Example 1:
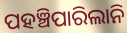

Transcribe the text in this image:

ପହଞ୍ଚିପାରିଲାନି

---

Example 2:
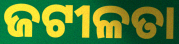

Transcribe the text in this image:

ଜଟୀଳତା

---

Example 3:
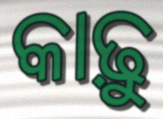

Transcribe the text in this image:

କାଢ଼ୁ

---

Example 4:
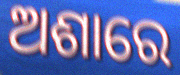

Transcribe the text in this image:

ଅଶାରେ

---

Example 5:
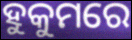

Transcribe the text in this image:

ହୁକୁମରେ